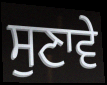
ਸੁਣਾਵੇ